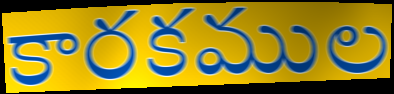
కారకముల